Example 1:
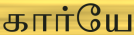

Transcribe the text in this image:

கார்யே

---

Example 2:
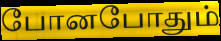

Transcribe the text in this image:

போனபோதும்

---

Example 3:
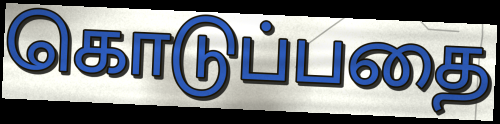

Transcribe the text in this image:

கொடுப்பதை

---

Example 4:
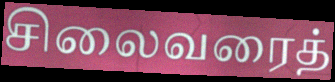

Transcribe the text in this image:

சிலைவரைத்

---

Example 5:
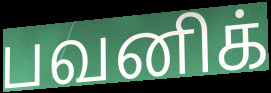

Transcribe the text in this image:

பவனிக்